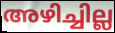
അഴിച്ചില്ല